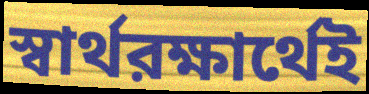
স্বার্থরক্ষার্থেই